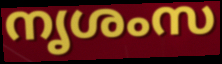
നൃശംസ